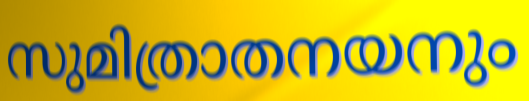
സുമിത്രാതനയനും